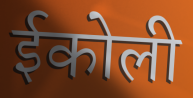
ईकोली